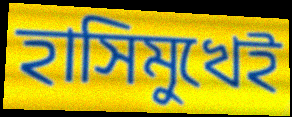
হাসিমুখেই